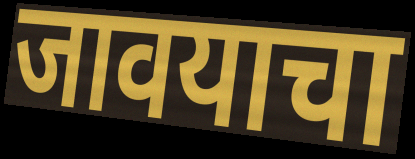
जावयाचा